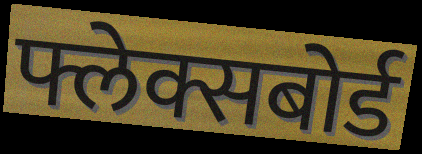
फ्लेक्सबोर्ड